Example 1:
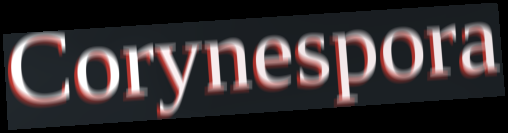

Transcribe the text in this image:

Corynespora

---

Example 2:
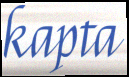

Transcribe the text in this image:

kapta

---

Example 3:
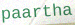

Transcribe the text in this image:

paartha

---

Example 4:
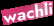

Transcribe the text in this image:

wachli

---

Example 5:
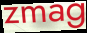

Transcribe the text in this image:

zmag